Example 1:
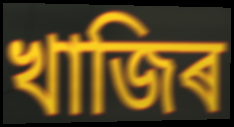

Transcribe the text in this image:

খাজিৰ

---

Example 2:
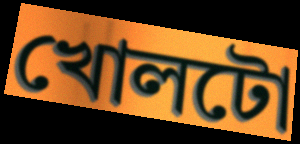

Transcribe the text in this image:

খোলটো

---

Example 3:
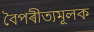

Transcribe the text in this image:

বৈপৰীত্যমূলক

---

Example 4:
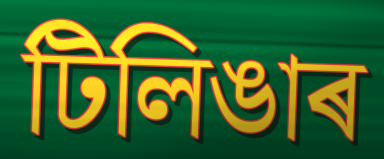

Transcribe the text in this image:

টিলিঙাৰ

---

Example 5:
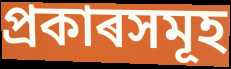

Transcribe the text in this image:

প্ৰকাৰসমূহ